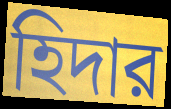
হিদার